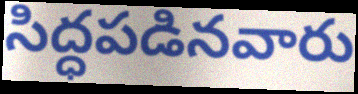
సిద్ధపడినవారు